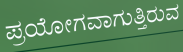
ಪ್ರಯೋಗವಾಗುತ್ತಿರುವ